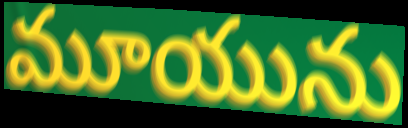
మూయును